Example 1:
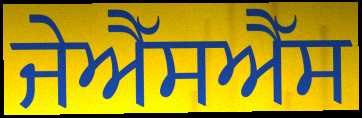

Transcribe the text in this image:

ਜੇਐੱਸਐੱਸ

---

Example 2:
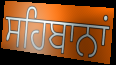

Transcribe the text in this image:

ਸਹਿਬਾਨਾਂ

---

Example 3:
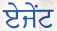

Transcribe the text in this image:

ਏਜੇਂਟ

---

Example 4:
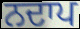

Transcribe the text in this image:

ਨਦਾਪ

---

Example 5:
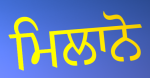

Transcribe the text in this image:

ਮਿਲਾਨੋ